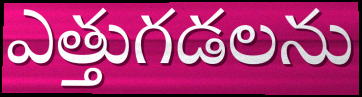
ఎత్తుగడలను